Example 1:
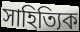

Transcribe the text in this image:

সাহিত্যিক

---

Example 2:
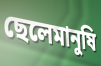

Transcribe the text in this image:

ছেলেমানুষি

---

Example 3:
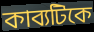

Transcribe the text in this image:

কাব্যটিকে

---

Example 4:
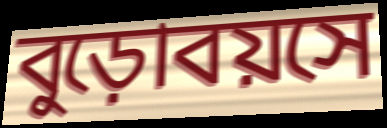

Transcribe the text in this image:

বুড়োবয়সে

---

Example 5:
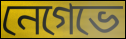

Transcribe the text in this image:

নেগেভে